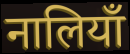
नालियाँ